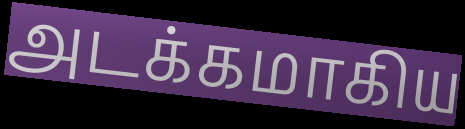
அடக்கமாகிய